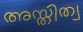
അസ്തിത്വ